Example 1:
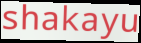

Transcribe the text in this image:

shakayu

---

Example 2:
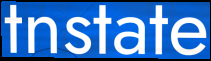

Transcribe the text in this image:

tnstate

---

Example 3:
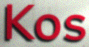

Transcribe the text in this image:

Kos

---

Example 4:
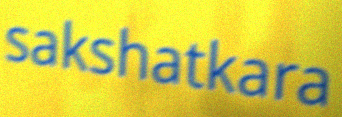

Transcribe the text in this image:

sakshatkara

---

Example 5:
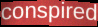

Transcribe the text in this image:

conspired